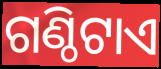
ଗଣ୍ଠିଟାଏ